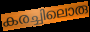
കരച്ചിലൊരു